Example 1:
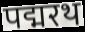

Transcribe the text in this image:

पद्मरथ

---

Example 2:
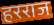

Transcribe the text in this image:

हरराज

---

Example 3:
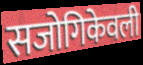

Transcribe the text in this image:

सजोगिकेवली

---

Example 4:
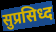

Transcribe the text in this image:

सुप्रसिध्द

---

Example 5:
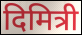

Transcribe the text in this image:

दिमित्री